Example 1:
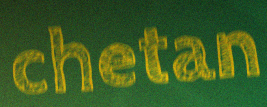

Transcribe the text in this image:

chetan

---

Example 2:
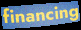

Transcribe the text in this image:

financing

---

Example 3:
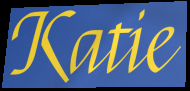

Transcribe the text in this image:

Katie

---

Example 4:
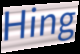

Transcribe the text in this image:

Hing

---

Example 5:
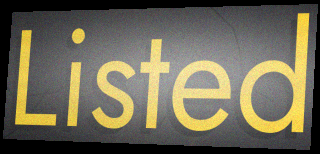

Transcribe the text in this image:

Listed